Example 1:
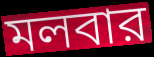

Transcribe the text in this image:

মলবার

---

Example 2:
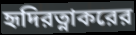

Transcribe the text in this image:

হৃদিরত্নাকরের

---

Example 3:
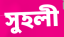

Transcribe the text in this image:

সুহলী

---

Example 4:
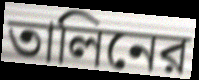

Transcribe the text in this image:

তালিনের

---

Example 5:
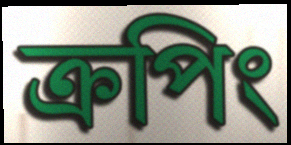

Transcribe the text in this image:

ক্রপিং